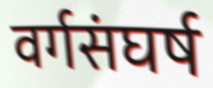
वर्गसंघर्ष